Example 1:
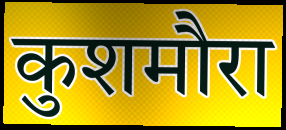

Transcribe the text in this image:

कुशमौरा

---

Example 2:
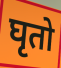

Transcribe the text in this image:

घृतो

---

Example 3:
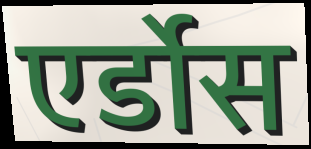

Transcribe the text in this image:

एर्डोस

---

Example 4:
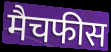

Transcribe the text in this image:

मैचफीस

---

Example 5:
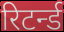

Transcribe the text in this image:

रिटर्न्ड